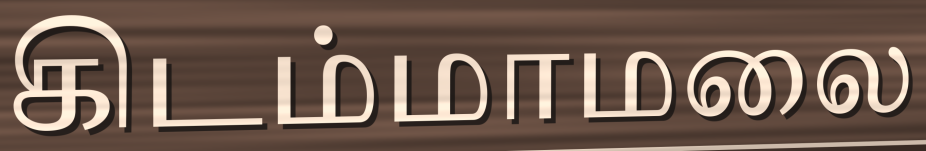
கிடம்மாமலை